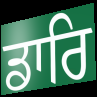
ਡਾਰਿ